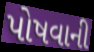
પોષવાની